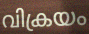
വിക്രയം